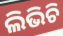
ଲିଭିଚି